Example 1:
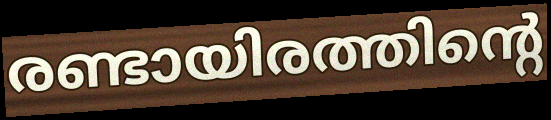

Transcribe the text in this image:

രണ്ടായിരത്തിന്റെ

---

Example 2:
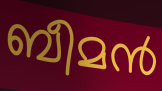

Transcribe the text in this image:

ബീമൻ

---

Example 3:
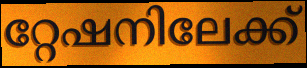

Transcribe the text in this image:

റ്റേഷനിലേക്ക്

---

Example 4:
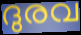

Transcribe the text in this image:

ദുരവ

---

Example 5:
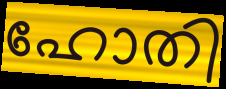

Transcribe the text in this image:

ഹോതി